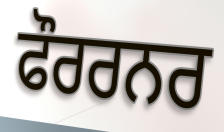
ਫੌਰਰਨਰ